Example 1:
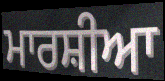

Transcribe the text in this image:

ਮਾਰਸ਼ੀਆ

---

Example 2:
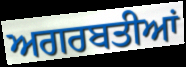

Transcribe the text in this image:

ਅਗਰਬਤੀਆਂ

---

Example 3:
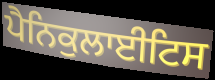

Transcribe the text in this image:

ਪੈਨਿਕੁਲਾਈਟਿਸ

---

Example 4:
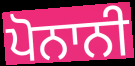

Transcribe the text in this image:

ਪੋਨਾਨੀ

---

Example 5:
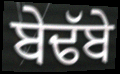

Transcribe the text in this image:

ਬੇਢੱਬੇ